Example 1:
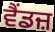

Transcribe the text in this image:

ਵੈਂਡਜ਼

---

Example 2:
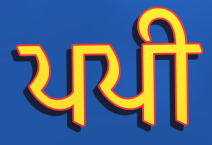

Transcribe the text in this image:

ਪਪੀ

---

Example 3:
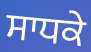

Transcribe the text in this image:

ਸਾਧਕੇ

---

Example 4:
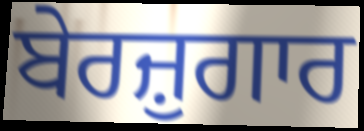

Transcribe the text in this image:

ਬੇਰਜ਼ੁਗਾਰ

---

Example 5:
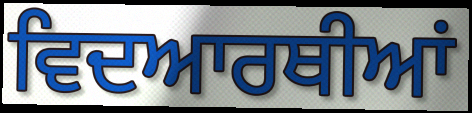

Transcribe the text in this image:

ਵਿਦਆਰਥੀਆਂ